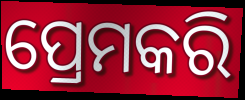
ପ୍ରେମକରି